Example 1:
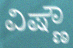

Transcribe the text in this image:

ವಿಷ್ಣೌ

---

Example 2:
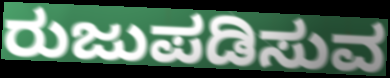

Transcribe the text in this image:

ರುಜುಪಡಿಸುವ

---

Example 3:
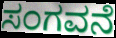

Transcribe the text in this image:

ಸಂಗವನೆ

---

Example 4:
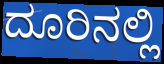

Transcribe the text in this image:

ದೂರಿನಲ್ಲಿ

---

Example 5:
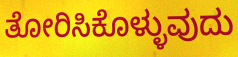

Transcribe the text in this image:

ತೋರಿಸಿಕೊಳ್ಳುವುದು